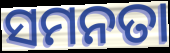
ସମନତା